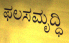
ಫಲಸಮೃದ್ಧಿ